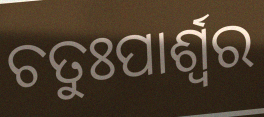
ଚତୁଃପାର୍ଶ୍ଵର